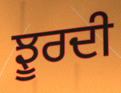
ਝੂਰਦੀ